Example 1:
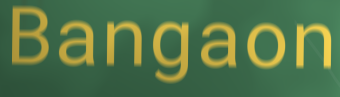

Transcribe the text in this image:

Bangaon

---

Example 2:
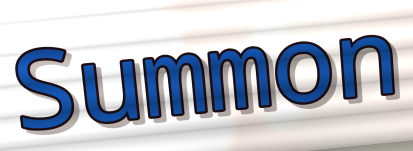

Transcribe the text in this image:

Summon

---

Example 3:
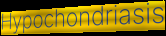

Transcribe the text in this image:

Hypochondriasis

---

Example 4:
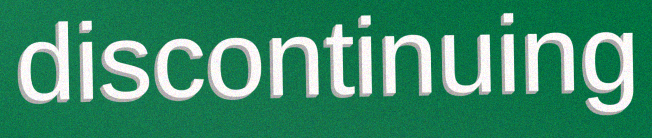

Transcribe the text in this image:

discontinuing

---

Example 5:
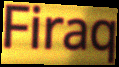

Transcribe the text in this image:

Firaq